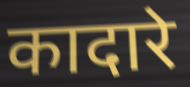
कादारे